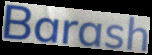
Barash